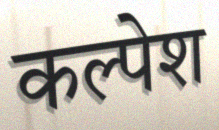
कल्पेश